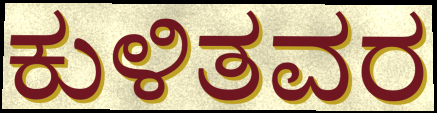
ಕುಳಿತವರ